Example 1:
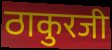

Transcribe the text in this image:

ठाकुरजी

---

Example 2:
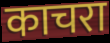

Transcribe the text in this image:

काचरा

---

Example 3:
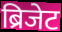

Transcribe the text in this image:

ब्रिजेट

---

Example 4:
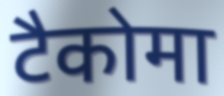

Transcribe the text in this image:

टैकोमा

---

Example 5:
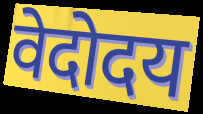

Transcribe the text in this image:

वेदोदय